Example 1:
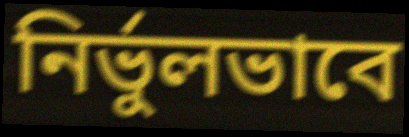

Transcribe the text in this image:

নির্ভুলভাবে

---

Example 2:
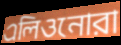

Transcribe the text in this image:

এলিওনোরা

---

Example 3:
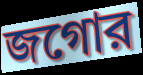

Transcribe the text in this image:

জগোর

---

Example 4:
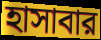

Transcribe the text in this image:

হাসাবার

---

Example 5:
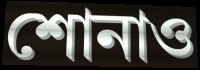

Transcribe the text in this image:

শোনাও